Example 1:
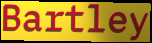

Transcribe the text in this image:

Bartley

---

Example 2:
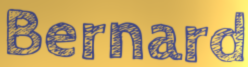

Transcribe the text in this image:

Bernard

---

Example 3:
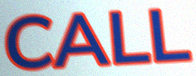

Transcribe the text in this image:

CALL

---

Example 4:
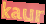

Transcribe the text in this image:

kaur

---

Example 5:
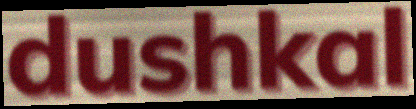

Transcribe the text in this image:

dushkal